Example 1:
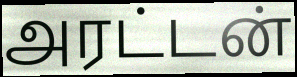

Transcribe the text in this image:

அரட்டன்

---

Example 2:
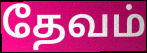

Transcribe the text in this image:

தேவம்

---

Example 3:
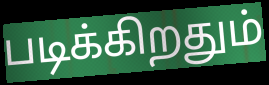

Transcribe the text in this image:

படிக்கிறதும்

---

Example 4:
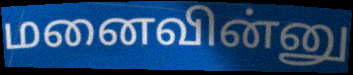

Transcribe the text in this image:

மனைவின்னு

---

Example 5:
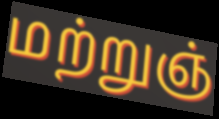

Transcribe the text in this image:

மற்றுஞ்